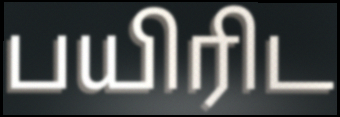
பயிரிட